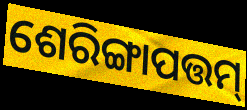
ଶେରିଙ୍ଗାପତ୍ତମ୍